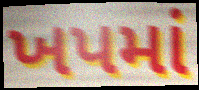
ખપમાં